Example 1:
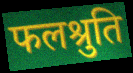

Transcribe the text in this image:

फलश्रुति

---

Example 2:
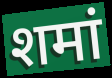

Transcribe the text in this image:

शमां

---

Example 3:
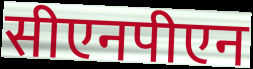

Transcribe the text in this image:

सीएनपीएन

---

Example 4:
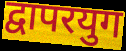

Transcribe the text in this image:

द्वापरयुग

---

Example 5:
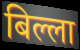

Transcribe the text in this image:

बिल्ला